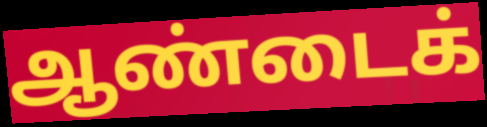
ஆண்டைக்